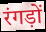
रंगड़ों